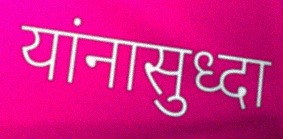
यांनासुध्दा